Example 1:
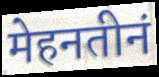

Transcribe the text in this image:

मेहनतीनं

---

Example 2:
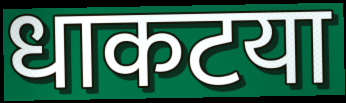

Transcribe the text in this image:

धाकटया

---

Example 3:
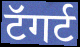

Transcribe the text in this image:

टॅगर्ट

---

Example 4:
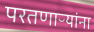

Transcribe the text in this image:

परतणाऱ्यांना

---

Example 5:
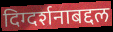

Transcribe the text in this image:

दिग्दर्शनाबद्दल